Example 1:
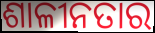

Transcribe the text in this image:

ଶାଳୀନତାର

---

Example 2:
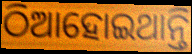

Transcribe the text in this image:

ଠିଆହୋଇଥାନ୍ତି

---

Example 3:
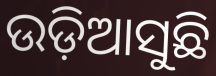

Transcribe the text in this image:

ଉଡ଼ିଆସୁଛି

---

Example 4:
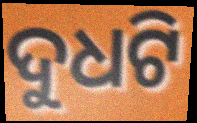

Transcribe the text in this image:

ଦୁଧଟି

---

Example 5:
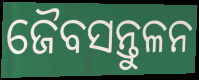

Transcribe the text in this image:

ଜୈବସନ୍ତୁଳନ